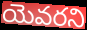
యెవరని